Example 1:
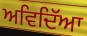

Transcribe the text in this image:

ਅਵਿਦਿੱਆ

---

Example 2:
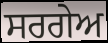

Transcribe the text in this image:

ਸਰਗੇਅ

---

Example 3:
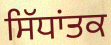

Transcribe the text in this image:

ਸਿੱਧਾਂਤਕ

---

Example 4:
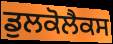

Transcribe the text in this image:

ਡੁਲਕੋਲੈਕਸ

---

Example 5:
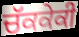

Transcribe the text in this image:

ਚੱਕਕੇਕੀ